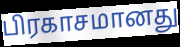
பிரகாசமானது